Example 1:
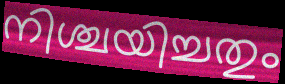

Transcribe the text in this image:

നിശ്ചയിച്ചതും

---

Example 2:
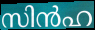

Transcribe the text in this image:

സിൻഹ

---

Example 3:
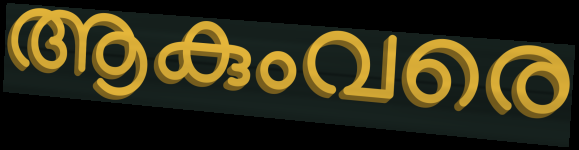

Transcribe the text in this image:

ആകുംവരെ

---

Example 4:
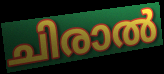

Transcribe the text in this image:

ചിരാൽ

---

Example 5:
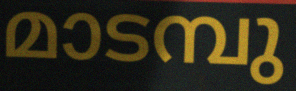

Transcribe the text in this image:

മാടമ്പു